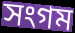
সংগম